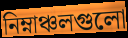
নিম্নাঞ্চলগুলো